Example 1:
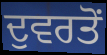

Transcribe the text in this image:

ਦੁਵਰਤੋਂ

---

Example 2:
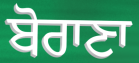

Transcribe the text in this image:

ਬੋਰਾਣਾ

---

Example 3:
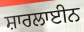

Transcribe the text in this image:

ਸ਼ਾਰਲਾਈਨ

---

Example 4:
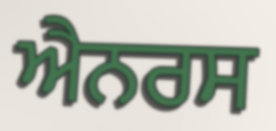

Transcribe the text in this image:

ਐਨਰਸ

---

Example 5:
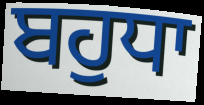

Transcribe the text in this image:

ਬਹੁਧਾ